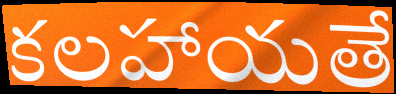
కలహాయతే